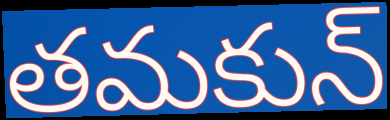
తమకున్